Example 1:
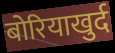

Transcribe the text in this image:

बोरियाखुर्द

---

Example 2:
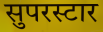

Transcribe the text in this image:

सुपरस्टार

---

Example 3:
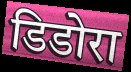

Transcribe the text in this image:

डिडोरा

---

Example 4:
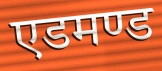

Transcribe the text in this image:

एडमण्ड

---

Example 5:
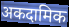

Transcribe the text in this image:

अकदामिक